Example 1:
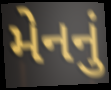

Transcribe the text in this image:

મેનનું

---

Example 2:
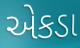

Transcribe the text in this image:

એકડા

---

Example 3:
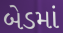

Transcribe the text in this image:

બેડમાં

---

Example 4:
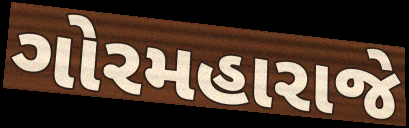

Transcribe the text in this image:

ગોરમહારાજે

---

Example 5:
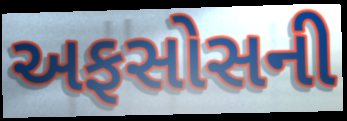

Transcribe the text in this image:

અફસોસની